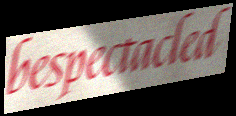
bespectacled